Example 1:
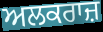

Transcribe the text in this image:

ਅਲਕਰਾਜ਼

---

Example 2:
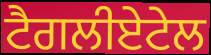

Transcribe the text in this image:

ਟੈਗਲੀਏਟੇਲ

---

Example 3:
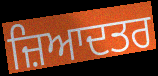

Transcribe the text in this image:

ਜ਼ਿਆਦਤਰ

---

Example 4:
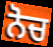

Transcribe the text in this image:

ਨੋਚ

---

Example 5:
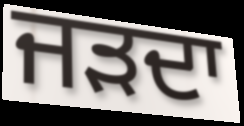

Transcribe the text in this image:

ਜੜਦਾ